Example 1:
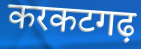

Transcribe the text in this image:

करकटगढ़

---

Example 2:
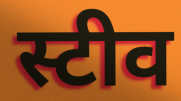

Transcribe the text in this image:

स्टीव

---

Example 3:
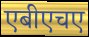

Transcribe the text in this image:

एबीएचए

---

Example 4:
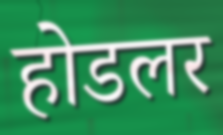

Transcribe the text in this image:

होडलर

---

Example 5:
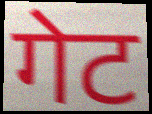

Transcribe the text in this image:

गेट